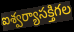
ఐశ్వర్యాసక్తిగల